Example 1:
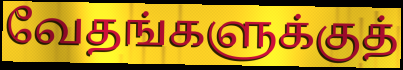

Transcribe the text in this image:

வேதங்களுக்குத்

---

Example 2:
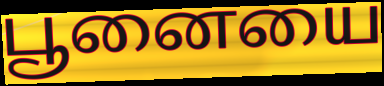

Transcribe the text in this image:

பூனையை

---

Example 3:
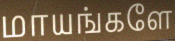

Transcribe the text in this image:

மாயங்களே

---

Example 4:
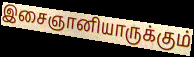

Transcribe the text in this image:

இசைஞானியாருக்கும்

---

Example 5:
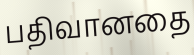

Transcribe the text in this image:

பதிவானதை